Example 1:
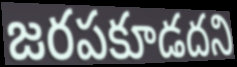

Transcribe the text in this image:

జరపకూడదని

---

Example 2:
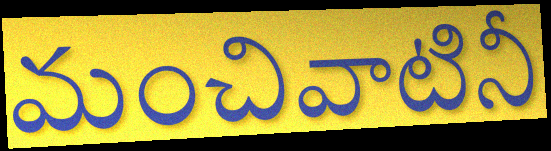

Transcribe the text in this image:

మంచివాటినీ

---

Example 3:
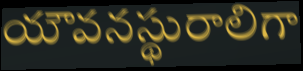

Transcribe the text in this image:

యౌవనస్థురాలిగా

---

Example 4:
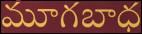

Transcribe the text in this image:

మూగబాధ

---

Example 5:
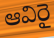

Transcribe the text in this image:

ఆవిరై